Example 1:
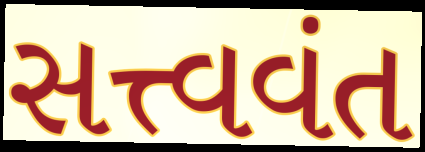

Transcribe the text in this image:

સત્ત્વવંત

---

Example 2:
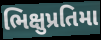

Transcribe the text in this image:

ભિક્ષુપ્રતિમા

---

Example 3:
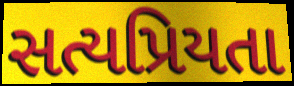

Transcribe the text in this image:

સત્યપ્રિયતા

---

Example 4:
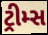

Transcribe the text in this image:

ટ્રીમ્સ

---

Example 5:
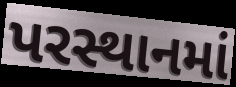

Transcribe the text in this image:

પરસ્થાનમાં